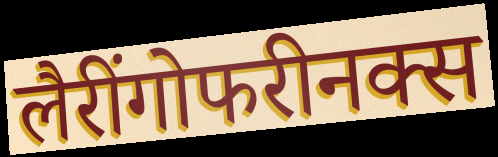
लैरींगोफरीनक्स